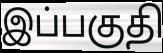
இப்பகுதி